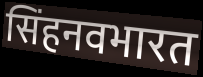
सिंहनवभारत